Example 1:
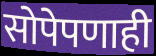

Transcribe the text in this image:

सोपेपणाही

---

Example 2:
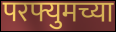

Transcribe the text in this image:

परफ्युमच्या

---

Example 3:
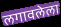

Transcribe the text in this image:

लगावलेला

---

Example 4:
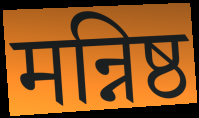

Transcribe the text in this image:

मन्निष्ठ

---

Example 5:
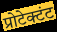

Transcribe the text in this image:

प्रोटेक्टंट